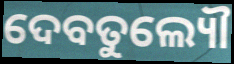
ଦେବତୁଲ୍ୟୌ